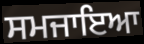
ਸਮਜਾਇਆ